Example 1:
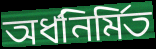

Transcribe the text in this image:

অর্ধনির্মিত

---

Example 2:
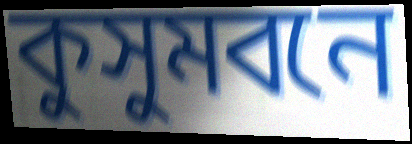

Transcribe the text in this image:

কুসুমবনে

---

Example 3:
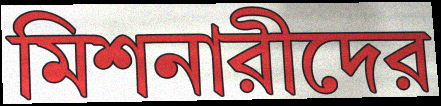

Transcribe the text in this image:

মিশনারীদের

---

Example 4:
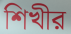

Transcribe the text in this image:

শিখীর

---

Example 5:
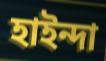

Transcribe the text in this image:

হাইন্দা